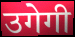
उगेगी